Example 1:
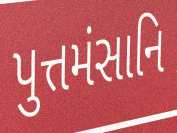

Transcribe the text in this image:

પુત્તમંસાનિ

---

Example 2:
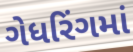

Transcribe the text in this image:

ગેધરિંગમાં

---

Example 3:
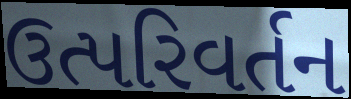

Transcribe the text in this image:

ઉત્પરિવર્તન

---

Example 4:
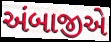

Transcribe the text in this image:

અંબાજીએ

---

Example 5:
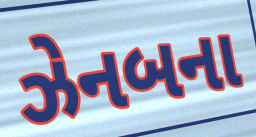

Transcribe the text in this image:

ઝેનબના